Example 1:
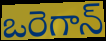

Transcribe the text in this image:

ఒరెగాన్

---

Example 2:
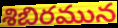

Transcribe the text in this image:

శిబిరమున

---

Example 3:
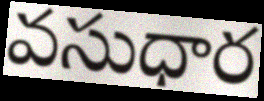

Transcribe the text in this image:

వసుధార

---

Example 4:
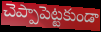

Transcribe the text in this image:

చెప్పాపెట్టకుండా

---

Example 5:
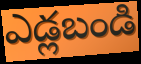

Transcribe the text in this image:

ఎడ్లబండి